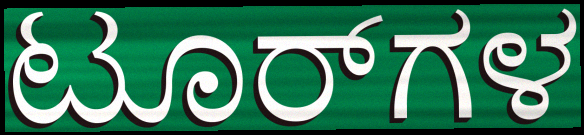
ಟೂರ್‌ಗಳ